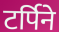
टर्पिने